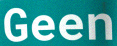
Geen